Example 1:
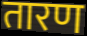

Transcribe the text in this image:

तारण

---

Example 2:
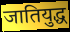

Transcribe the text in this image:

जातियुद्ध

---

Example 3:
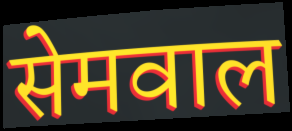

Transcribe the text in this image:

सेमवाल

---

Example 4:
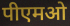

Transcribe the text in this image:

पीएमओ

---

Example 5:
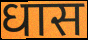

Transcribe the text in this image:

धास